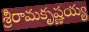
శ్రీరామకృష్ణయ్య